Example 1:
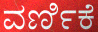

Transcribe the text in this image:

ವರ್ಣಿಕೆ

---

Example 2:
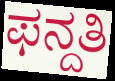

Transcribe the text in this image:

ಫನ್ದತಿ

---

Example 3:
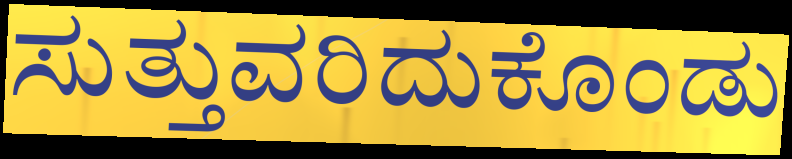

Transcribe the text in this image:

ಸುತ್ತುವರಿದುಕೊಂಡು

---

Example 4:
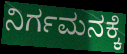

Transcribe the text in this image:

ನಿರ್ಗಮನಕ್ಕೆ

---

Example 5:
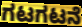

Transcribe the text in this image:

ಗಟಗಟನೆ